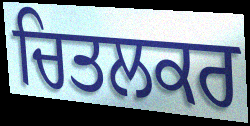
ਚਿਤਲਕਰ